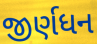
જીર્ણધન